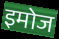
इमोज